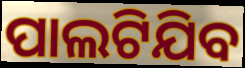
ପାଲଟିଯିବ